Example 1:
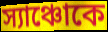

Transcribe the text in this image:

স্যাঞ্চোকে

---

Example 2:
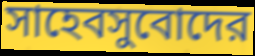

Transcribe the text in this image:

সাহেবসুবোদের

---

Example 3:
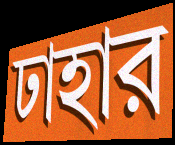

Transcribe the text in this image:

ঢাহার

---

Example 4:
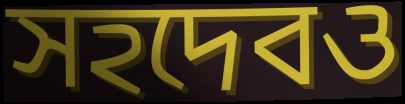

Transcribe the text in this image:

সহদেবও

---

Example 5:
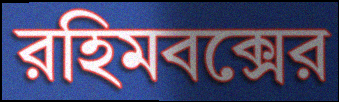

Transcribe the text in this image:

রহিমবক্সের